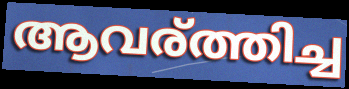
ആവര്ത്തിച്ച